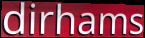
dirhams